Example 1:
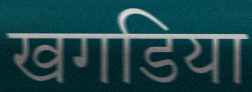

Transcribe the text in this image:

खगडिया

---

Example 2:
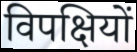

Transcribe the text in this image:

विपक्षियों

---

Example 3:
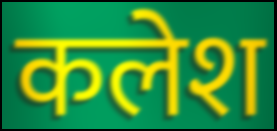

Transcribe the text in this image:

कलेश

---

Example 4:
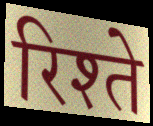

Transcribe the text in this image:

रिश्ते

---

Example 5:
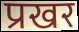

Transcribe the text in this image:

प्रखर